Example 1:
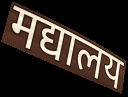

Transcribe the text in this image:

मद्यालय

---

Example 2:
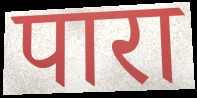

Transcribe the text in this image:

पारा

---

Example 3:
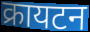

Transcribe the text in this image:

क्रायटन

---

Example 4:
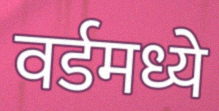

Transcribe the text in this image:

वर्डमध्ये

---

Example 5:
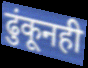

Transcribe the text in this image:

ढुंकूनही